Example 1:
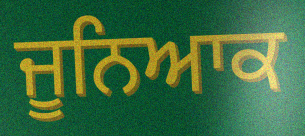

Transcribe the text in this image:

ਜੂਨਿਆਕ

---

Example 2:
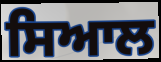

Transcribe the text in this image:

ਸਿਆਲ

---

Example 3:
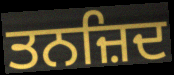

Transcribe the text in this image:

ਤਨਜ਼ਿਦ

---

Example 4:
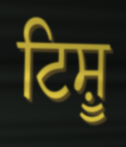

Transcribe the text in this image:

ਟਿਸ਼ੂ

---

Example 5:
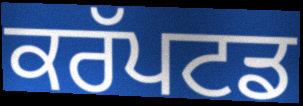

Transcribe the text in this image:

ਕਰੱਪਟਡ